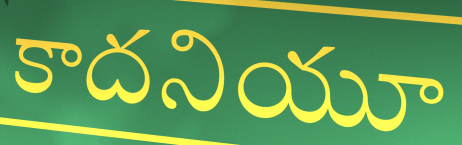
కాదనియూ